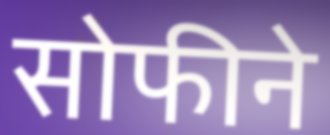
सोफीने